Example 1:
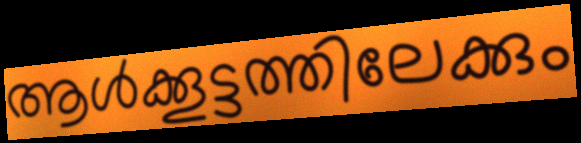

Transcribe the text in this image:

ആൾക്കൂട്ടത്തിലേക്കും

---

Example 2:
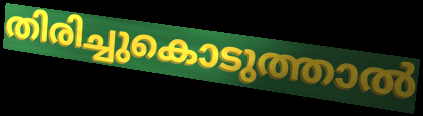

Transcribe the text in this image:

തിരിച്ചുകൊടുത്താൽ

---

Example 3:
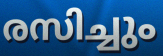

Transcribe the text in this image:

രസിച്ചും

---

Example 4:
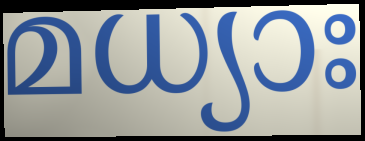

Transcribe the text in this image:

മധ്യാഃ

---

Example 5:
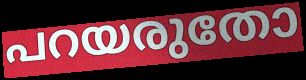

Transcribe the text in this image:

പറയരുതോ